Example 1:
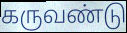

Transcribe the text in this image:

கருவண்டு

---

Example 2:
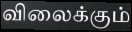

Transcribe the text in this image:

விலைக்கும்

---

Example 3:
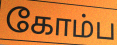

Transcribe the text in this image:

கோம்ப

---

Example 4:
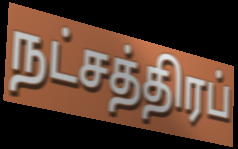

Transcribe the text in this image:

நட்சத்திரப்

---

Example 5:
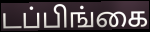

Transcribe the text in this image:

டப்பிங்கை